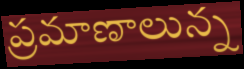
ప్రమాణాలున్న